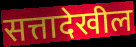
सत्तादेखील